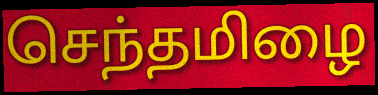
செந்தமிழை